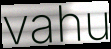
vahu